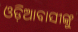
ଓଡ଼ିଆବାସୀଙ୍କୁ